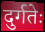
दुर्गतेः